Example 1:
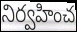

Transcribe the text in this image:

నిర్వహించ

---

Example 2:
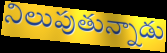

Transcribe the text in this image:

నిలుపుతున్నాడు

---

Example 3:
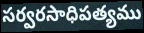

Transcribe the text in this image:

సర్వరసాధిపత్యము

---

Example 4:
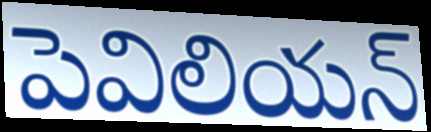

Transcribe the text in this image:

పెవిలియన్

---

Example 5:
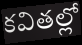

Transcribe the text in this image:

కవితల్లో